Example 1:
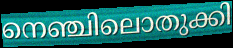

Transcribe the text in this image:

നെഞ്ചിലൊതുക്കി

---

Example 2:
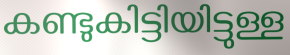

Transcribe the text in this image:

കണ്ടുകിട്ടിയിട്ടുള്ള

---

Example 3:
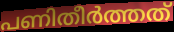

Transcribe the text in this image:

പണിതീർത്തത്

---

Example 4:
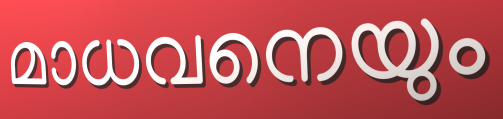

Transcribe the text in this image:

മാധവനെയും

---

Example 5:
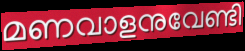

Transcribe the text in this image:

മണവാളനുവേണ്ടി